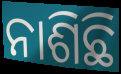
ନାଶିଛି